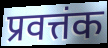
प्रवत्तंक